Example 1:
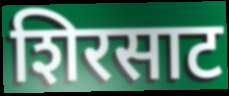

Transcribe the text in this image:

शिरसाट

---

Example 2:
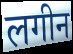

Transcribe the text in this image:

लगीन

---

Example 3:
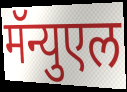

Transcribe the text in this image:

मॅन्युएल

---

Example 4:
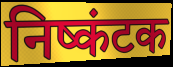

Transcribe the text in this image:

निष्कंटक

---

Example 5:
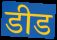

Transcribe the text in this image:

डीड